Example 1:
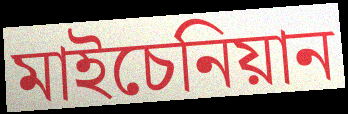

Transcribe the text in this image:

মাইচেনিয়ান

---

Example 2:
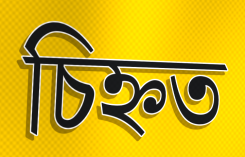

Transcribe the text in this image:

চিহ্নত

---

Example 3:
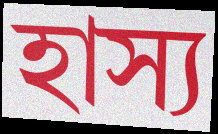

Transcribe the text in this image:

হাস্য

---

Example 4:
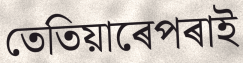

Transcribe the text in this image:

তেতিয়াৰেপৰাই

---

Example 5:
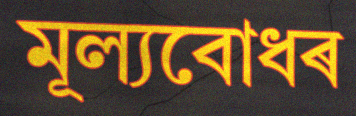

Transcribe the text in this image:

মূল্যবোধৰ